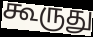
கூருது